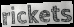
rickets